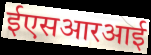
ईएसआरआई